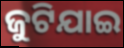
ଜୁଟିଯାଇ